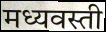
मध्यवस्ती